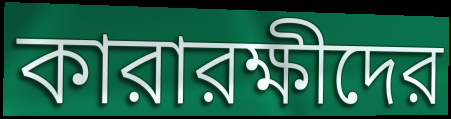
কারারক্ষীদের